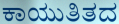
ಕಾಯುತಿತದ